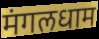
मंगलधाम